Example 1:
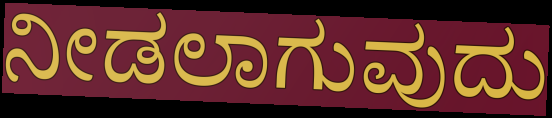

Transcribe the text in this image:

ನೀಡಲಾಗುವುದು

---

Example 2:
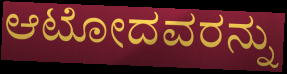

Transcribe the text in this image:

ಆಟೋದವರನ್ನು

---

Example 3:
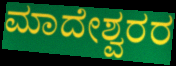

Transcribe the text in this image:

ಮಾದೇಶ್ವರರ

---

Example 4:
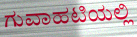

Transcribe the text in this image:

ಗುವಾಹಟಿಯಲ್ಲಿ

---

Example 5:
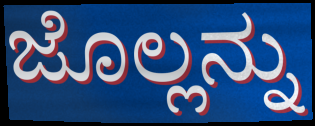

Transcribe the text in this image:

ಜೊಲ್ಲನ್ನು